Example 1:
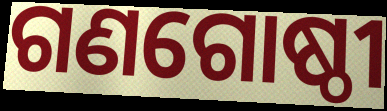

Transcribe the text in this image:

ଗଣଗୋଷ୍ଠୀ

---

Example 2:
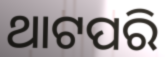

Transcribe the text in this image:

ଥାଟପରି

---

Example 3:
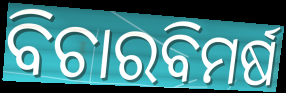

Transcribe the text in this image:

ବିଚାରବିମର୍ଷ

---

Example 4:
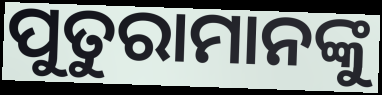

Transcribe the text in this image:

ପୁତୁରାମାନଙ୍କୁ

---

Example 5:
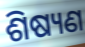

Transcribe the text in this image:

ଶିଷ୍ୟଣ